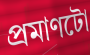
প্ৰমাণটো